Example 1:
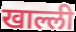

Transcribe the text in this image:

खाल्ली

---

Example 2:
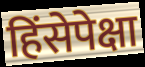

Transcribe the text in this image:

हिंसेपेक्षा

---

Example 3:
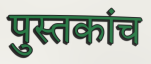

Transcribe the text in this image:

पुस्तकांच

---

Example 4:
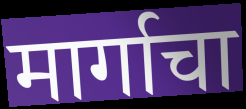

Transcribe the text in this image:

मार्गाचा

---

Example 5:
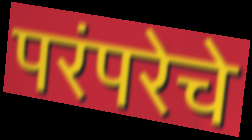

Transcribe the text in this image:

परंपरेचे